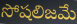
సోషలిజమే